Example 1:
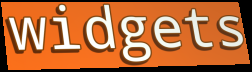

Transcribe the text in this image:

widgets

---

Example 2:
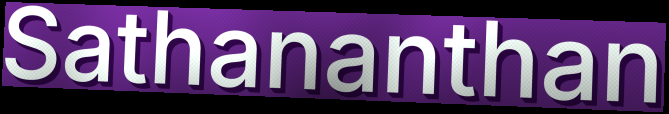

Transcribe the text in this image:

Sathananthan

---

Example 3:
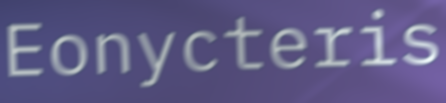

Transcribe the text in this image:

Eonycteris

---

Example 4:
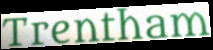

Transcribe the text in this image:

Trentham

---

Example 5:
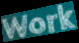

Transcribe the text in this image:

Work